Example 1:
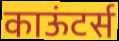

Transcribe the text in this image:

काऊंटर्स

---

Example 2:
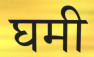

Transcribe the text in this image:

घमी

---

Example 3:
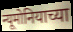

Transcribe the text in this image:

न्यूमोनियाच्या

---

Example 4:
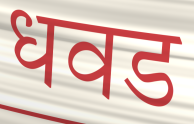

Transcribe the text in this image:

धवड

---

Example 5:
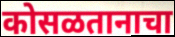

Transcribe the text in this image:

कोसळतानाचा